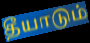
தீயாடும்